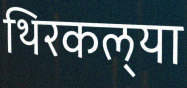
थिरकल्या